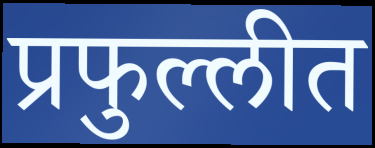
प्रफुल्लीत